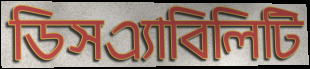
ডিসএ্যাবিলিটি